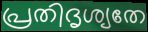
പ്രതിദൃശ്യതേ